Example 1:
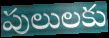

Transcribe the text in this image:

పులులకు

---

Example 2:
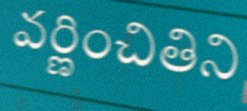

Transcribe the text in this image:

వర్ణించితిని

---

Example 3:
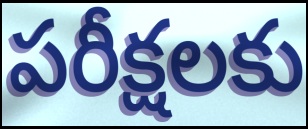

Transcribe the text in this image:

పరీక్షలకు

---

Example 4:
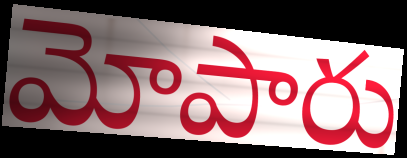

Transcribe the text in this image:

మోపారు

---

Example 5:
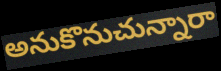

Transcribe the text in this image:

అనుకొనుచున్నారా